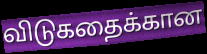
விடுகதைக்கான